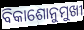
ବିକାଶୋନୁମୁଖୀ